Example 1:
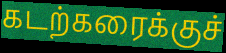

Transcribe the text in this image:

கடற்கரைக்குச்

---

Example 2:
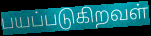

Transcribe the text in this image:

பயப்படுகிறவள்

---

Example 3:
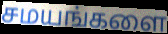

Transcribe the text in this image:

சமயங்களை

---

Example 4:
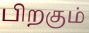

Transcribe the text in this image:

பிறகும்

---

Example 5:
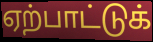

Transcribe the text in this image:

ஏற்பாட்டுக்